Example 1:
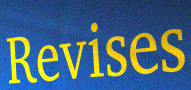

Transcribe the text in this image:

Revises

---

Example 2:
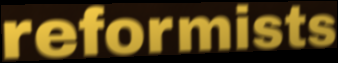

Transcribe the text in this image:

reformists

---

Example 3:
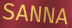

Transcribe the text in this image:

SANNA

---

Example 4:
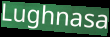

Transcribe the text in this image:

Lughnasa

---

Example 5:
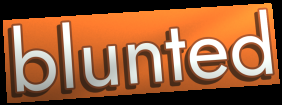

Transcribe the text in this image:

blunted